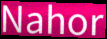
Nahor